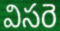
విసరె